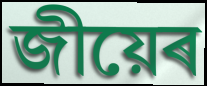
জীয়েৰ